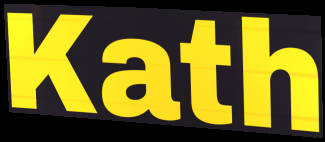
Kath